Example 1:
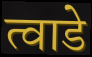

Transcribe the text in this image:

त्वाडे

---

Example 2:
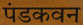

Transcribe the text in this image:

पंडकवन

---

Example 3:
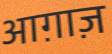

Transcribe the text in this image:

आग़ाज़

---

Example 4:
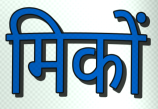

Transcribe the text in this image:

मिकों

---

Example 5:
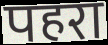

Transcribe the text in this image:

पहरा